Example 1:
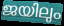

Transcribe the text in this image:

ജയിലും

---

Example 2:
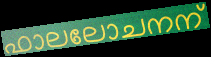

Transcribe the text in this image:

ഫാലലോചനന്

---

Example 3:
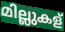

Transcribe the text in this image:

മില്ലുകള്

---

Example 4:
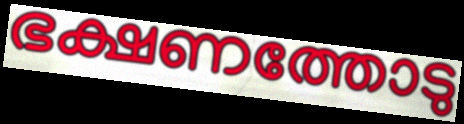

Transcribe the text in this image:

ഭക്ഷണത്തോടു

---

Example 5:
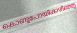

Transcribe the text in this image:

കൊണ്ടുപോയിക്കഴിഞ്ഞു